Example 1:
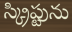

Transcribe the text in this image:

స్క్రిప్టును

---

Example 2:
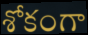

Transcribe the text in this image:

శోకంగా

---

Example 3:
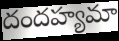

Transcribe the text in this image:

దందహ్యమా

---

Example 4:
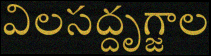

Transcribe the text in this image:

విలసద్దృగ్జాల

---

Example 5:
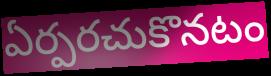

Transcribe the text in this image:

ఏర్పరచుకొనటం